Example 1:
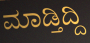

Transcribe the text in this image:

ಮಾಡ್ತಿದ್ದಿ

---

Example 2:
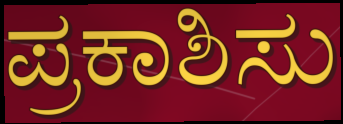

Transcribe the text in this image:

ಪ್ರಕಾಶಿಸು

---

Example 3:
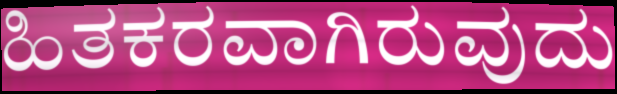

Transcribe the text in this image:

ಹಿತಕರವಾಗಿರುವುದು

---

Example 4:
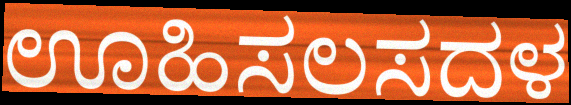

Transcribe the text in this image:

ಊಹಿಸಲಸದಳ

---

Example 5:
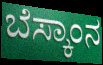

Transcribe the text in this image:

ಬೆಸ್ಕಾಂನ